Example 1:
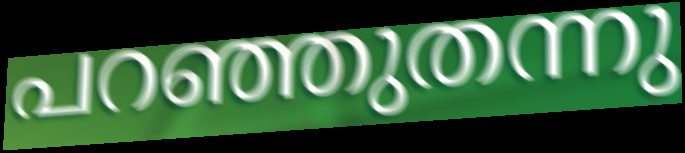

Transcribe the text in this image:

പറഞ്ഞുതന്നു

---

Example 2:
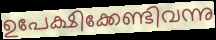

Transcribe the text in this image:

ഉപേക്ഷിക്കേണ്ടിവന്നു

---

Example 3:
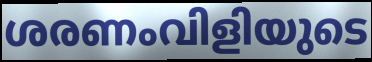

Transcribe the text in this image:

ശരണംവിളിയുടെ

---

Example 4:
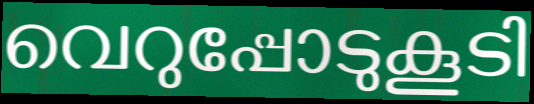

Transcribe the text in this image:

വെറുപ്പോടുകൂടി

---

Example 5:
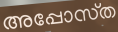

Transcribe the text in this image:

അപ്പോസ്‌ത